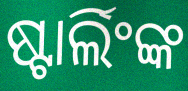
ଷ୍ଟାର୍ଲିଂଙ୍କ